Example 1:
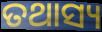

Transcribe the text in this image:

ତଥାସ୍ୟ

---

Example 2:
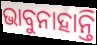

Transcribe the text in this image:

ଭାବୁନାହାନ୍ତି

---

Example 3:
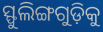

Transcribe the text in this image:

ସ୍ଫୁଲିଙ୍ଗଗୁଡ଼ିକୁ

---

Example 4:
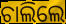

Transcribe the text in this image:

ଚାଲିଲେ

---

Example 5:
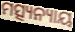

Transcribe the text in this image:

ମତ୍ସ୍ୟନ୍ୟାୟ